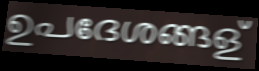
ഉപദേശങ്ങള്